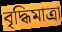
বৃদ্ধিমাত্রা